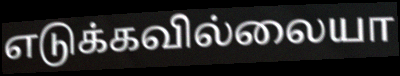
எடுக்கவில்லையா